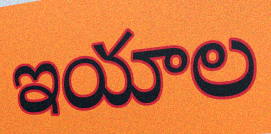
ఇయాల